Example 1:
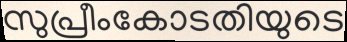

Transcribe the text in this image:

സുപ്രീംകോടതിയുടെ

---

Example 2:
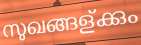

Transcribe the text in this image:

സുഖങ്ങള്ക്കും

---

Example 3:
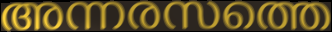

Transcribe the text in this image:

അന്നരസത്തെ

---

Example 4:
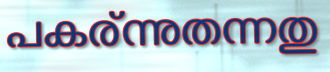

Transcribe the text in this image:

പകര്ന്നുതന്നതു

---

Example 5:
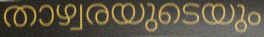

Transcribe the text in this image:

താഴ്വരയുടെയും